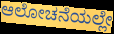
ಆಲೋಚನೆಯಲ್ಲೇ